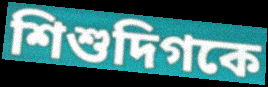
শিশুদিগকে